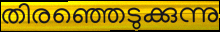
തിരഞ്ഞെടുക്കുന്നു